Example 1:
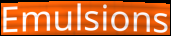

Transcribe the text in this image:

Emulsions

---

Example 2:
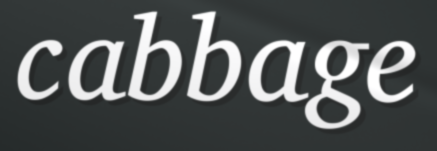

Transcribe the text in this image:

cabbage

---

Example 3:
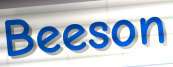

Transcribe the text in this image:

Beeson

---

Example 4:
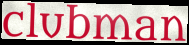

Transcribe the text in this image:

clubman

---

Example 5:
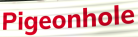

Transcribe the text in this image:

Pigeonhole